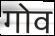
गोव